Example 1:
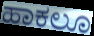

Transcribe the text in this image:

ಹಾಕಲೂ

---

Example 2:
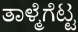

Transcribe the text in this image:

ತಾಳ್ಮೆಗೆಟ್ಟ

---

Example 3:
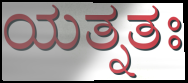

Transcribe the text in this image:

ಯತ್ನತಃ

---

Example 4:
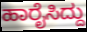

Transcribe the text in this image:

ಹಾರೈಸಿದ್ದು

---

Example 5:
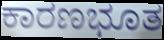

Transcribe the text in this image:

ಕಾರಣಭೂತ